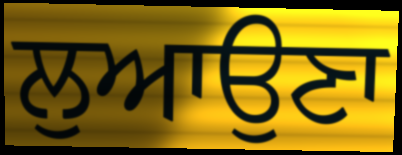
ਲੁਆਉਣਾ